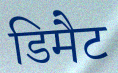
डिमैट